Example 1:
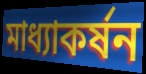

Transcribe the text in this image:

মাধ্যাকর্ষন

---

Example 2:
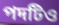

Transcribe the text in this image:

পদটিও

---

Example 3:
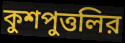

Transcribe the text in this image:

কুশপুত্তলির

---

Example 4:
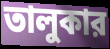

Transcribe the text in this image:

তালুকার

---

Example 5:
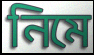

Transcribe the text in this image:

নিমে